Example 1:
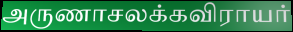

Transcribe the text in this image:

அருணாசலக்கவிராயர்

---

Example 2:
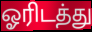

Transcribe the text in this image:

ஓரிடத்து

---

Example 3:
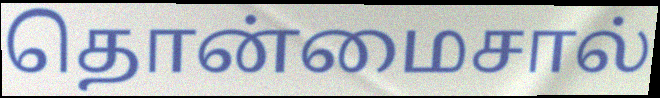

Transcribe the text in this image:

தொன்மைசால்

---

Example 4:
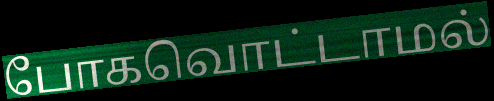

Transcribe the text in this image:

போகவொட்டாமல்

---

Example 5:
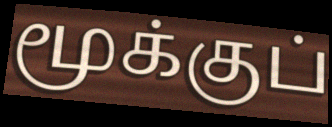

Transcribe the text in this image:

மூக்குப்